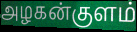
அழகன்குளம்